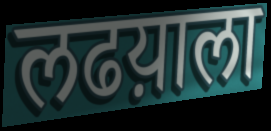
लढय़ाला